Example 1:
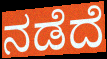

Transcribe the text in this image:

ನಡೆದೆ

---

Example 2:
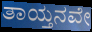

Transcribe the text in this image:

ತಾಯ್ತನವೇ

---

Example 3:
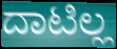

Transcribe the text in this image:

ದಾಟಿಲ್ಲ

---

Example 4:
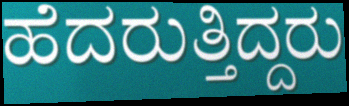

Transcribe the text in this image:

ಹೆದರುತ್ತಿದ್ದರು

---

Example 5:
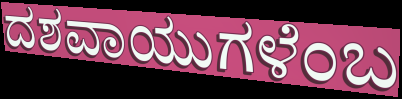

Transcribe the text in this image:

ದಶವಾಯುಗಳೆಂಬ